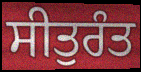
ਸੀਤੁਰੰਤ